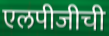
एलपीजीची